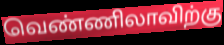
வெண்ணிலாவிற்கு